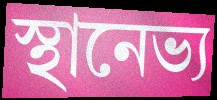
স্থানেভ্য